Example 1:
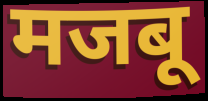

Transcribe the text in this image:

मजबू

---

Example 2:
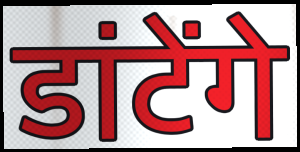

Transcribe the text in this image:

डांटेंगे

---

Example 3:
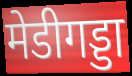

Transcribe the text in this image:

मेडीगड्डा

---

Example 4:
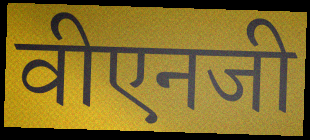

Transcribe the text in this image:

वीएनजी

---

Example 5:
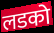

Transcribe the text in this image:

लडको